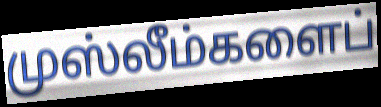
முஸ்லீம்களைப்